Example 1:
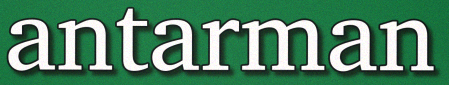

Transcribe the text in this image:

antarman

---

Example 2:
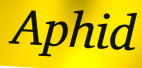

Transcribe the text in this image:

Aphid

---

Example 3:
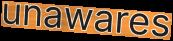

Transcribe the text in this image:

unawares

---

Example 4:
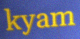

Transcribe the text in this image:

kyam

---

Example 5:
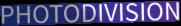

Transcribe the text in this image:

PHOTODIVISION